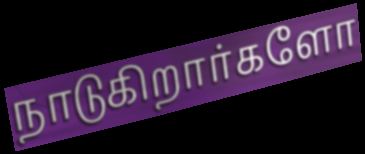
நாடுகிறார்களோ